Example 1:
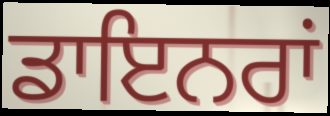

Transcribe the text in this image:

ਡਾਇਨਰਾਂ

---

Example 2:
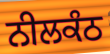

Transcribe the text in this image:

ਨੀਲਕੰਠ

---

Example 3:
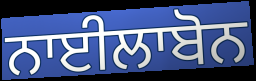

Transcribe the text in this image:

ਨਾਈਲਾਬੋਨ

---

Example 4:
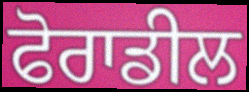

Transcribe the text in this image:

ਫੋਰਾਡੀਲ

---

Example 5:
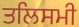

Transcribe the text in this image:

ਤਲਿਸਮੀ